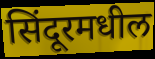
सिंदूरमधील